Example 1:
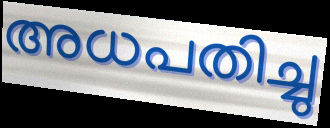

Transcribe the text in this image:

അധപതിച്ചു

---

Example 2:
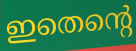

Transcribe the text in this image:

ഇതെന്റെ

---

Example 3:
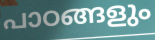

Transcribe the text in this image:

പാഠങ്ങളും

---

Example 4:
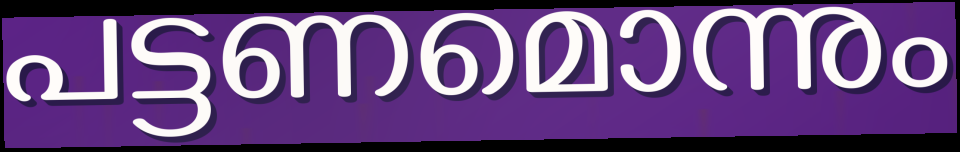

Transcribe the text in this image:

പട്ടണമൊന്നും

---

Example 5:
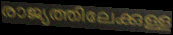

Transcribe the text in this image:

രാജ്യത്തിലേക്കുള്ള